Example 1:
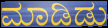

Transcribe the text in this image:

ಮಾಡಿಡು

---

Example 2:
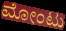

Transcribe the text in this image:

ಮೋಂಟು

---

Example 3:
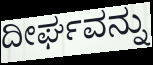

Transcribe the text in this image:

ದೀರ್ಘವನ್ನು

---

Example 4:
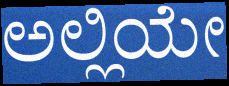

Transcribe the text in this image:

ಅಲ್ಲಿಯೇ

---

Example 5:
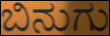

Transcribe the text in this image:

ಬಿನುಗು